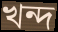
খন্দ